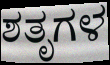
ಶತೃಗಳ